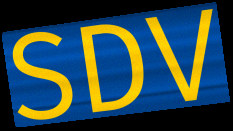
SDV